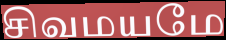
சிவமயமே